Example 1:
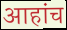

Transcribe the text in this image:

आहांच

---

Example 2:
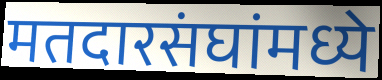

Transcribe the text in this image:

मतदारसंघांमध्ये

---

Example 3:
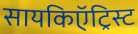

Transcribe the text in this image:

सायकिऍट्रिस्ट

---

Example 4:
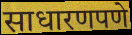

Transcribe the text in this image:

साधारणपणे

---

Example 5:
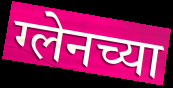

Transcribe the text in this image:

ग्लेनच्या